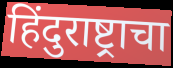
हिंदुराष्ट्राचा